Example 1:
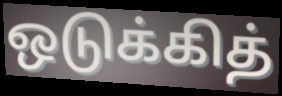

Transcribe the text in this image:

ஒடுக்கித்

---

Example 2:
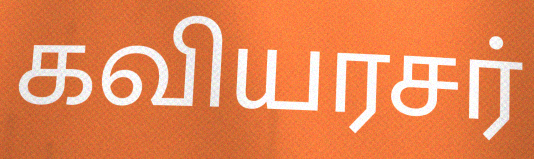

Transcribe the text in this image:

கவியரசர்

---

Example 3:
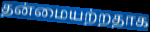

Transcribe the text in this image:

தன்மையற்றதாக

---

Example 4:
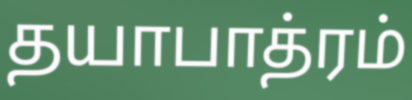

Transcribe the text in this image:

தயாபாத்ரம்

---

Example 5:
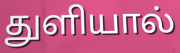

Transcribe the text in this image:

துளியால்